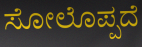
ಸೋಲೊಪ್ಪದೆ